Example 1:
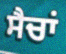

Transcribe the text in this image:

ਸੈਚਾਂ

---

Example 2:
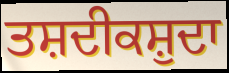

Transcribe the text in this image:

ਤਸ਼ਦੀਕਸ਼ੁਦਾ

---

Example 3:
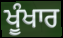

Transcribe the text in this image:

ਖੂੰਖਾਰ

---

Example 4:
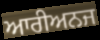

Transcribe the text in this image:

ਆਰੀਅਨਜ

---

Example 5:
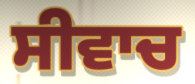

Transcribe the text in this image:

ਸੀਵਾਚ